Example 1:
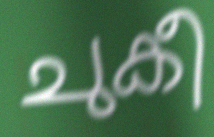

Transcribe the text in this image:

ചുകീ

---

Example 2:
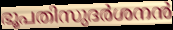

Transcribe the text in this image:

ഭൂപതിസുദർശനൻ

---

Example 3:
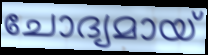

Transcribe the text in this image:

ചോദ്യമായ്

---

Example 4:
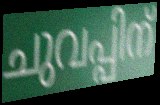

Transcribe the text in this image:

ചുവപ്പിന്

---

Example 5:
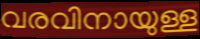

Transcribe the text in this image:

വരവിനായുള്ള